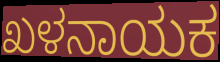
ಖಳನಾಯಕ